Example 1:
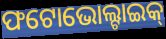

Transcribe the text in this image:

ଫଟୋଭୋଲ୍ଟାଇକ୍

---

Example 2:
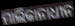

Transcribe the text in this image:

ମାଲିକାନାଧୀନ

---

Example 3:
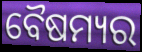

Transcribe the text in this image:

ବୈଷମ୍ଯର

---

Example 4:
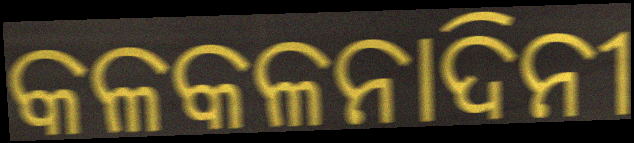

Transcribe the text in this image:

କଳକଳନାଦିନୀ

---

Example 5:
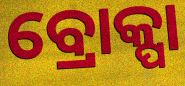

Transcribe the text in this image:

ବ୍ରୋକ୍ପା